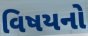
વિષયનો